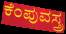
ಕೆಂಪುವಸ್ತ್ರ